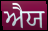
ਐਯ